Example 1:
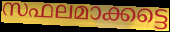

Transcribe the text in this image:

സഫലമാക്കട്ടെ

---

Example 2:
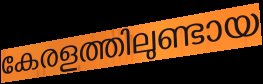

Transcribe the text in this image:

കേരളത്തിലുണ്ടായ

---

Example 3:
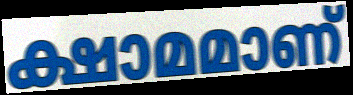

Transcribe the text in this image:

ക്ഷാമമാണ്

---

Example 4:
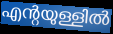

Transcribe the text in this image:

എന്റയുള്ളിൽ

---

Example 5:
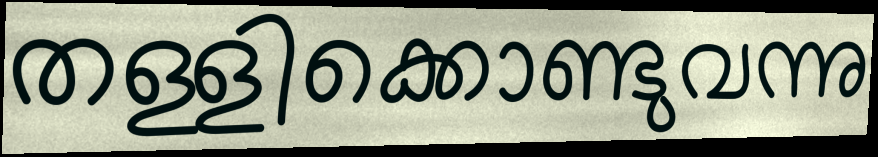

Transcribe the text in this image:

തള്ളിക്കൊണ്ടുവന്നു